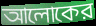
আলোকের